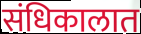
संधिकालात